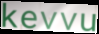
kevvu